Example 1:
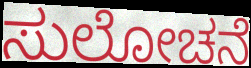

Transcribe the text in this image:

ಸುಲೋಚನೆ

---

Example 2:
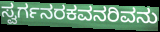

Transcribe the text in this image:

ಸ್ವರ್ಗನರಕವನರಿವನು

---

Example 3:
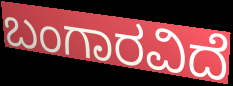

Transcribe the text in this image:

ಬಂಗಾರವಿದೆ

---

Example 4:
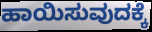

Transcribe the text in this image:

ಹಾಯಿಸುವುದಕ್ಕೆ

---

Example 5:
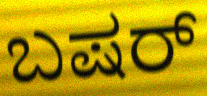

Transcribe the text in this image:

ಬಷರ್